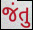
જંતુ